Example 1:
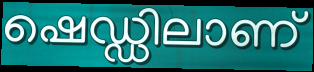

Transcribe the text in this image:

ഷെഡ്ഡിലാണ്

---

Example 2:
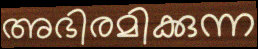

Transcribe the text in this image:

അഭിരമിക്കുന്ന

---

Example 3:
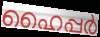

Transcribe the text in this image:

ഹൈപ്പർ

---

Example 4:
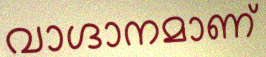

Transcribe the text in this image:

വാഗ്ദാനമാണ്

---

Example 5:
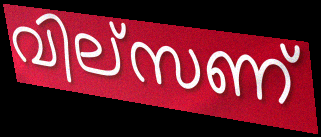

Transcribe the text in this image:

വില്സണ്